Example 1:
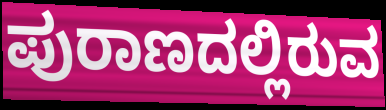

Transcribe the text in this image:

ಪುರಾಣದಲ್ಲಿರುವ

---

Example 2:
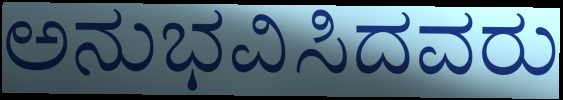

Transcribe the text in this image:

ಅನುಭವಿಸಿದವರು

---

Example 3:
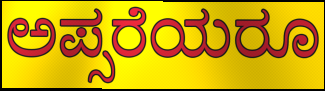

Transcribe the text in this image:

ಅಪ್ಸರೆಯರೂ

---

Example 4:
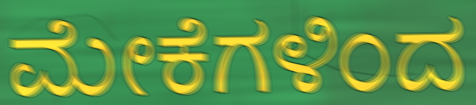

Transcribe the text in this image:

ಮೇಕೆಗಳಿಂದ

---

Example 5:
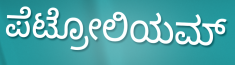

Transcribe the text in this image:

ಪೆಟ್ರೋಲಿಯಮ್